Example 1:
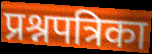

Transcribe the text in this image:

प्रश्नपत्रिका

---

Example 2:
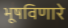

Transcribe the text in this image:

भूषविणारे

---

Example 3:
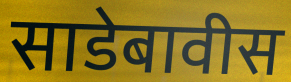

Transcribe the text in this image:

साडेबावीस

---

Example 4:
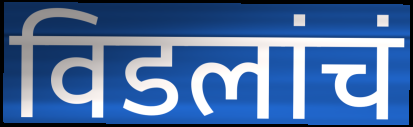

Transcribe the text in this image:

विडलांचं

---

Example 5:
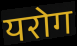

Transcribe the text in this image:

यरोग